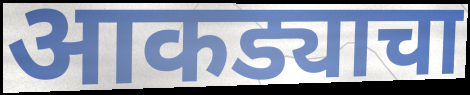
आकड्याचा